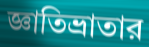
জ্ঞাতিভ্রাতার